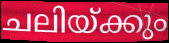
ചലിയ്ക്കും